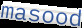
masood